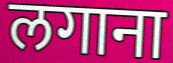
लगाना